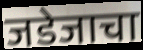
जडेजाचा